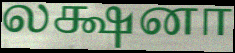
லக்ஷனா